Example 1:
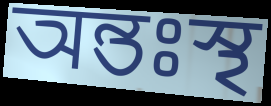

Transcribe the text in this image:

অন্তঃস্থ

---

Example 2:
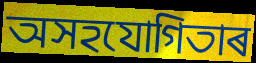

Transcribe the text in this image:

অসহযোগিতাৰ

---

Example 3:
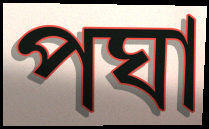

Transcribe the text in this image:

পঘা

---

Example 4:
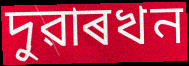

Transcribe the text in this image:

দুৱাৰখন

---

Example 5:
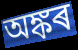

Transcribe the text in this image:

অঙ্কৰ